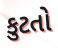
કુટતો